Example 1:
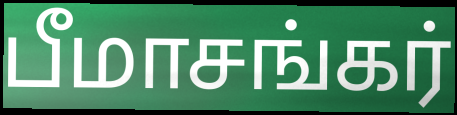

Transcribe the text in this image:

பீமாசங்கர்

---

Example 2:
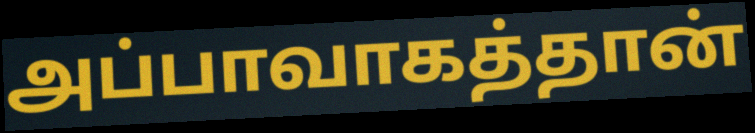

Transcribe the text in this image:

அப்பாவாகத்தான்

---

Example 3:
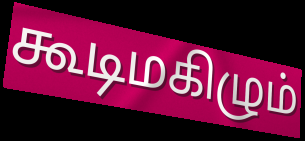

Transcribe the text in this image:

கூடிமகிழும்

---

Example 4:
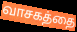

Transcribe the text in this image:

வாசகத்தை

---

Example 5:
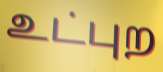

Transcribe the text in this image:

உட்புற